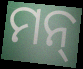
ମନ୍